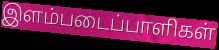
இளம்படைப்பாளிகள்